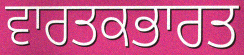
ਵਾਰਤਕਭਾਰਤ